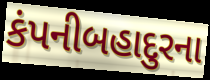
કંપનીબહાદુરના